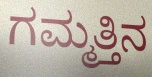
ಗಮ್ಮತ್ತಿನ